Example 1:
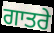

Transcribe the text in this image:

ਗਾਤਰੇ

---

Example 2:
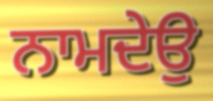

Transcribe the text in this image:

ਨਾਮਦੇਉ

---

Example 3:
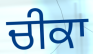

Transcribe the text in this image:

ਚੀਕਾ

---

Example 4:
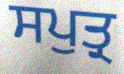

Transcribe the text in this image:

ਸਪੁਤ੍ਰ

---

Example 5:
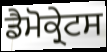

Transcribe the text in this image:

ਡੈਮੋਕ੍ਰੇਟਸ